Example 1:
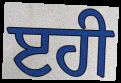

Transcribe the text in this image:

ੲਹੀ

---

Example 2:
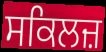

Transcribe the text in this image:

ਸਕਿਲਜ਼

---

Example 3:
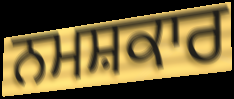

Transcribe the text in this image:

ਨਮਸ਼ਕਾਰ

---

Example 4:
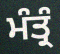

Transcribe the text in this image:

ਮੰਤ੍ਰੰ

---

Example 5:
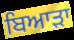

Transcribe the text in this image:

ਬਿਆੜਾ